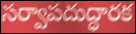
సర్వాపదుద్ధారక